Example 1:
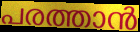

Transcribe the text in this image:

പരത്താൻ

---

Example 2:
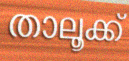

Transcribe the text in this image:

താലൂക്ക്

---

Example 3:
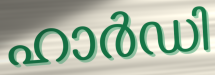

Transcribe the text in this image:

ഹാർഡി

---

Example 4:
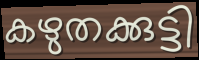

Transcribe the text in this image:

കഴുതക്കുട്ടി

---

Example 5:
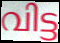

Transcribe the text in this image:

വിട്ട